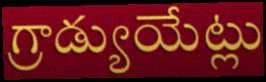
గ్రాడ్యుయేట్లు